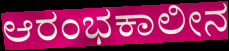
ಆರಂಭಕಾಲೀನ